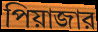
পিয়াজার